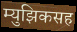
म्युझिकसह